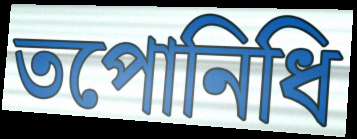
তপোনিধি